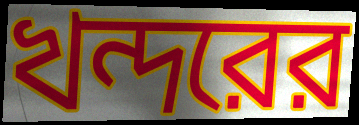
খন্দরের